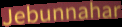
Jebunnahar